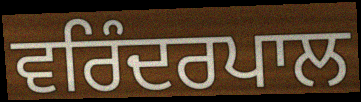
ਵਰਿੰਦਰਪਾਲ